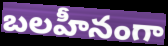
బలహీనంగా